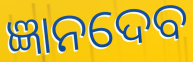
ଜ୍ଞାନଦେବ